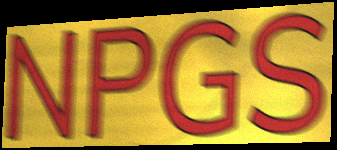
NPGS